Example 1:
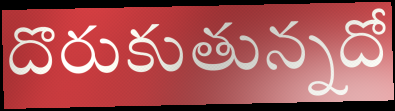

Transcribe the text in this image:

దొరుకుతున్నదో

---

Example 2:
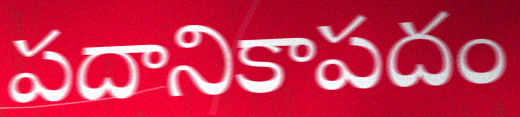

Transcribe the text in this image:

పదానికాపదం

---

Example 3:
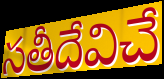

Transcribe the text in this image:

సతీదేవిచే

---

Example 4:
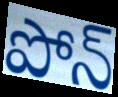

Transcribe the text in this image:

పోన్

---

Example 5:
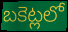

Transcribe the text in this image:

బకెట్లలో